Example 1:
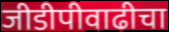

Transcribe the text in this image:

जीडीपीवाढीचा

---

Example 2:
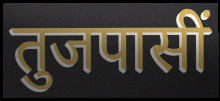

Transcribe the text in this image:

तुजपासीं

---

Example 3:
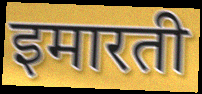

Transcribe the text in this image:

इमारती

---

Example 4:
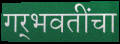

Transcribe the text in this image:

गर्भवतींचा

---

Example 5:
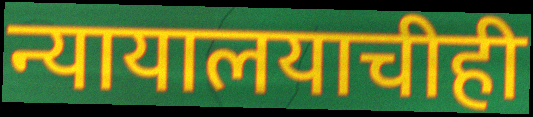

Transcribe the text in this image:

न्यायालयाचीही